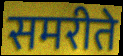
समरीते